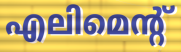
എലിമെന്റ്